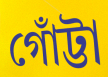
গোঁট্টা